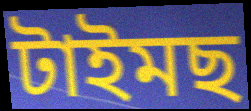
টাইমছ